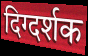
दिग्‍दर्शक